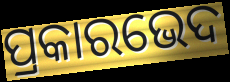
ପ୍ରକାରଭେଦ